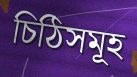
চিঠিসমূহ